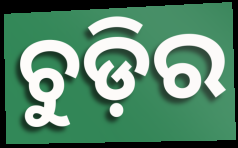
ଚୁଡ଼ିର